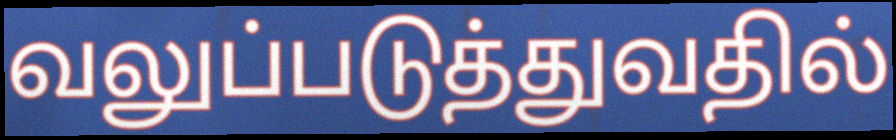
வலுப்படுத்துவதில்